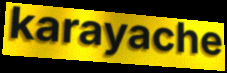
karayache